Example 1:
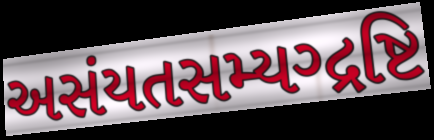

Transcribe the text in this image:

અસંયતસમ્યગ્દ્રષ્ટિ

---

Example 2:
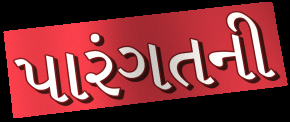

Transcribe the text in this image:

પારંગતની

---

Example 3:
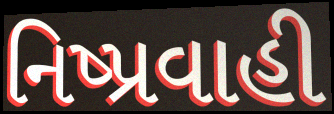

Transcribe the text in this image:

નિષ્પ્રવાહી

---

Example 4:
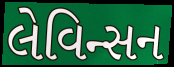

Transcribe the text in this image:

લેવિન્સન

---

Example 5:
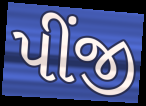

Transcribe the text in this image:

પીંજી